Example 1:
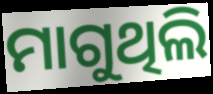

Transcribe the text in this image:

ମାଗୁଥିଲି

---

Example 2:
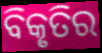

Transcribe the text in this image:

ବିକୃତିର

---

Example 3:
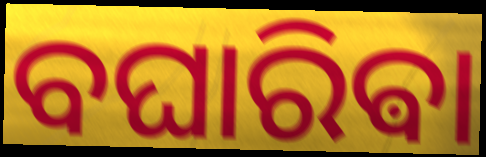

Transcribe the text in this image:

ବଘାରିଵା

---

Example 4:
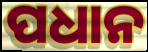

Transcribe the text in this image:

ପଧାନ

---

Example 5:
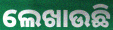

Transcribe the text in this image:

ଲେଖାଉଛି